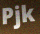
Pjk